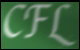
CFL